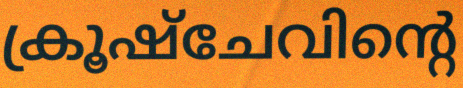
ക്രൂഷ്ചേവിന്റെ